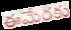
ఈమేరకు